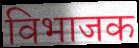
विभाजक